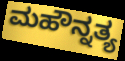
ಮಹೌನ್ನತ್ಯ